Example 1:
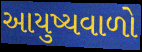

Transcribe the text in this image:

આયુષ્યવાળો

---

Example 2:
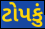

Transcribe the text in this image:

ટોપકું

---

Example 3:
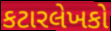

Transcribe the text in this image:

કટારલેખકો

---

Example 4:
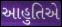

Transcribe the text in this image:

આહુતિએ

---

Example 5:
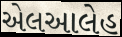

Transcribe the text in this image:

એલઆલેહ